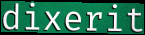
dixerit